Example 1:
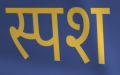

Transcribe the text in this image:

स्पश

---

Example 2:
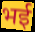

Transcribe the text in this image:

भई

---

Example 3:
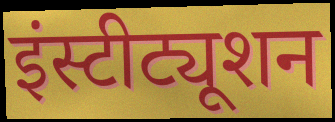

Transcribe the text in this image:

इंस्टीट्यूशन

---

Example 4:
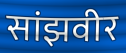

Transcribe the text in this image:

सांझवीर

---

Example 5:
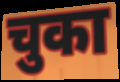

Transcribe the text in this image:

चुका